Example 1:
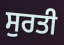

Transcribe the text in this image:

ਸੁਰਤੀ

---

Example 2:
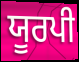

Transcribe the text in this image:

ਯੂਰਪੀ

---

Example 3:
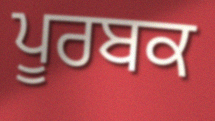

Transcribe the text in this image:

ਪੂਰਬਕ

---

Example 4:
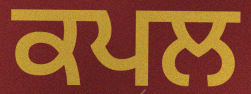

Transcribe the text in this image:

ਕਪਲ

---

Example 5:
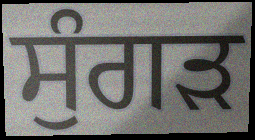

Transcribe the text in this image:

ਸੁੰਗੜ